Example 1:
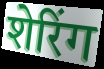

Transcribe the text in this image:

शेरिंग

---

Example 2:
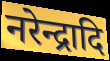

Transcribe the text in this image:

नरेन्द्रादि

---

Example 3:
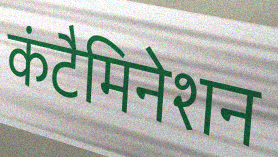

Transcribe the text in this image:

कंटैमिनेशन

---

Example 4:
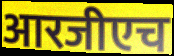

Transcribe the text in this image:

आरजीएच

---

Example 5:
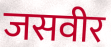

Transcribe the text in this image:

जसवीर